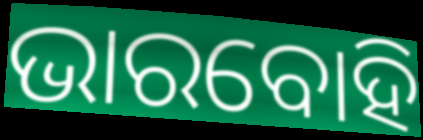
ଭାରବୋହି